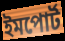
ইমপোর্ট